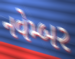
નવેમ્બર